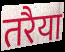
तरैया